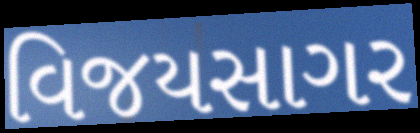
વિજયસાગર